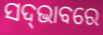
ସଦ୍‌ଭାବରେ